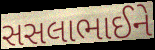
સસલાભાઈને